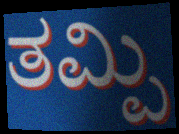
ತಮ್ಪಿ